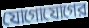
যোগোযোগের